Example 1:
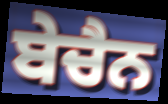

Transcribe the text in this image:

ਬੇਚੈਨ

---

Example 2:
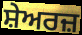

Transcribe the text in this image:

ਸ਼ੇਅਰਜ਼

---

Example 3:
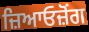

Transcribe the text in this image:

ਜ਼ਿਆਓਜ਼ੋਂਗ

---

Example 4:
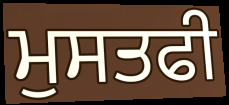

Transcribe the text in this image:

ਮੁਸਤਫੀ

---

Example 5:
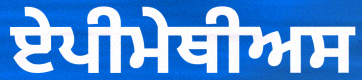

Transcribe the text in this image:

ਏਪੀਮੇਥੀਅਸ